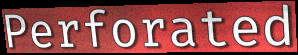
Perforated